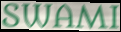
SWAMI